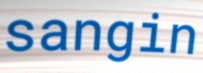
sangin